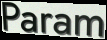
Param